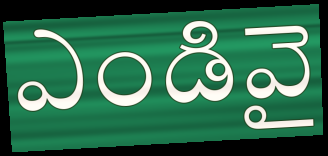
ఎండివై